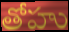
తోహు